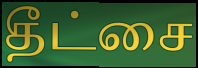
தீட்சை